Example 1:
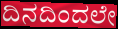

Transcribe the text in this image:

ದಿನದಿಂದಲೇ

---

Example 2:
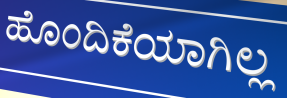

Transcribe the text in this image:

ಹೊಂದಿಕೆಯಾಗಿಲ್ಲ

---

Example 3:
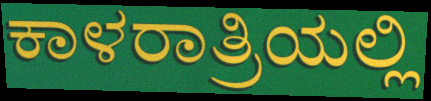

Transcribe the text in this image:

ಕಾಳರಾತ್ರಿಯಲ್ಲಿ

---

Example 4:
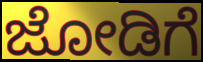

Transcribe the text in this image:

ಜೋಡಿಗೆ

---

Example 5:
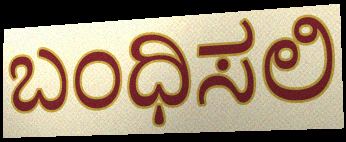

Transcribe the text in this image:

ಬಂಧಿಸಲಿ